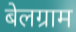
बेलग्राम